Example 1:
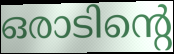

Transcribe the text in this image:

ഒരാടിന്റെ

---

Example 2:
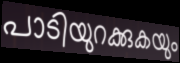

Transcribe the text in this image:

പാടിയുറക്കുകയും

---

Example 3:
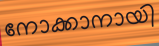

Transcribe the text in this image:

നോക്കാനായി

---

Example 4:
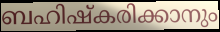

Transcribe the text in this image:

ബഹിഷ്കരിക്കാനും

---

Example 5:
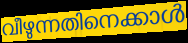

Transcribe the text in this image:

വീഴുന്നതിനെക്കാൾ